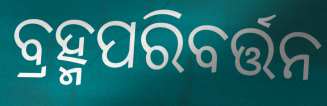
ବ୍ରହ୍ମପରିବର୍ତ୍ତନ